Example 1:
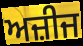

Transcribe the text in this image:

ਅਜ਼ੀਜ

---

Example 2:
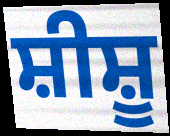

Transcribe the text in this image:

ਸ਼ੀਸ਼ੂ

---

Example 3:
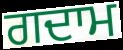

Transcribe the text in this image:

ਗਦਾਮ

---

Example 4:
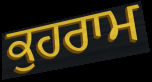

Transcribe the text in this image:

ਕੁਹਰਾਮ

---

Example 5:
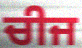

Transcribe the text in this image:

ਚੀਜ